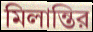
মিলান্তির